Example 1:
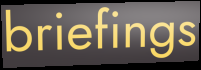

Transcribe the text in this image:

briefings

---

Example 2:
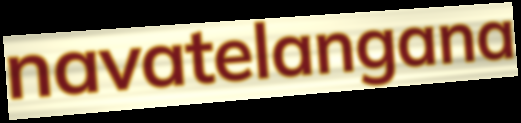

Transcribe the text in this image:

navatelangana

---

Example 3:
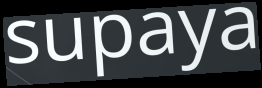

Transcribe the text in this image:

supaya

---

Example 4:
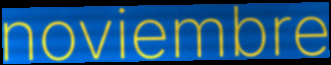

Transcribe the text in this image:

noviembre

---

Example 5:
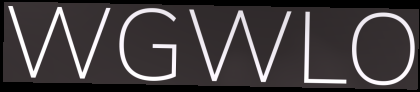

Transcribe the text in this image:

WGWLO